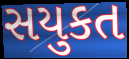
સયુકત